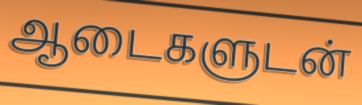
ஆடைகளுடன்